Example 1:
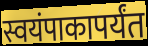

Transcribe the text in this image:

स्वयंपाकापर्यंत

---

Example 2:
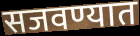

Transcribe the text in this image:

सजवण्यात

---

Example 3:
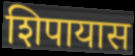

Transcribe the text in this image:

शिपायास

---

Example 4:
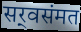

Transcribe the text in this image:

सर्वसंमत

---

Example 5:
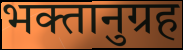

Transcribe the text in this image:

भक्तानुग्रह